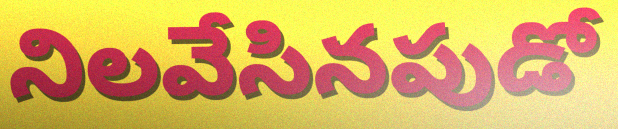
నిలవేసినపుడో